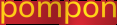
pompon